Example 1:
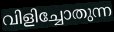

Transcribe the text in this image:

വിളിച്ചോതുന്ന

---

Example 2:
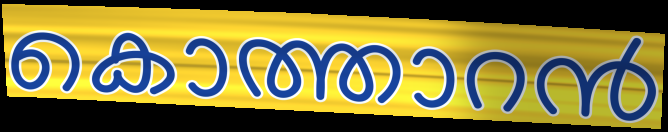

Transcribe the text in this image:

കൊത്താറൻ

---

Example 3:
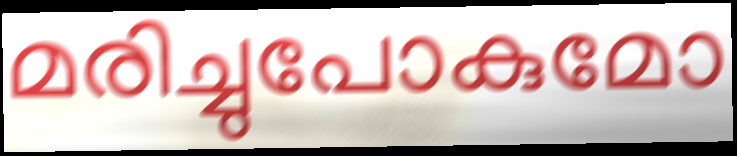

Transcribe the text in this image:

മരിച്ചുപോകുമോ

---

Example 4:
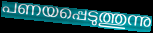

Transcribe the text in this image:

പണയപ്പെടുത്തുന്നു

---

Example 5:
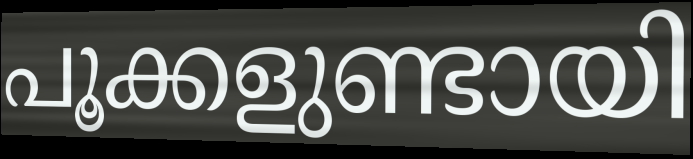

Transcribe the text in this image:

പൂക്കളുണ്ടായി